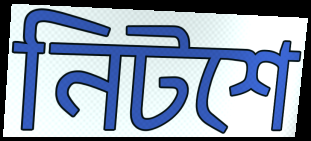
নিটশে